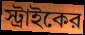
স্ট্রাইকের